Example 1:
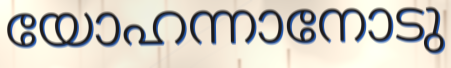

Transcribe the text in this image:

യോഹന്നാനോടു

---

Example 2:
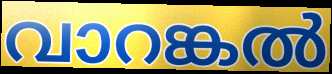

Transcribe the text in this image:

വാറങ്കൽ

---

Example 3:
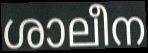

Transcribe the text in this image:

ശാലീന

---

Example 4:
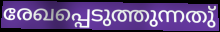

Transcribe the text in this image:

രേഖപ്പെടുത്തുന്നതു്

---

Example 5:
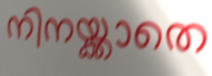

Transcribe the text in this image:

നിനയ്ക്കാതെ